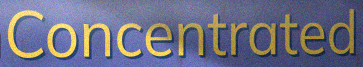
Concentrated